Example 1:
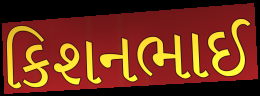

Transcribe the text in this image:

કિશનભાઈ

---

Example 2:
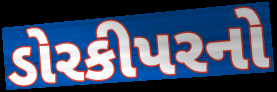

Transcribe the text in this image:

ડોરકીપરનો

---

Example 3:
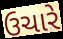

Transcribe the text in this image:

ઉચારે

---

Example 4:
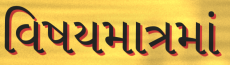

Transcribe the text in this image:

વિષયમાત્રમાં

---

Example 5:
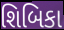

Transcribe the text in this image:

શિબિકા